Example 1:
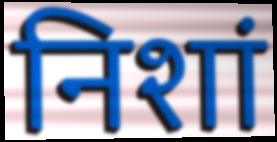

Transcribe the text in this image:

निशां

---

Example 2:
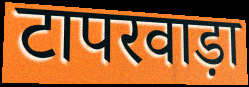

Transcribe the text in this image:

टापरवाड़ा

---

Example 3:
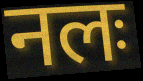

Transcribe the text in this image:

नलः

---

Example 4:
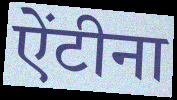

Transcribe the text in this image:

ऐंटीना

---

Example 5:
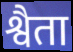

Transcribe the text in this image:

श्वैता